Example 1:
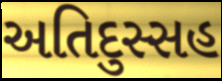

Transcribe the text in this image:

અતિદુસ્સહ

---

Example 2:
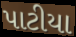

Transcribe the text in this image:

પાટીયા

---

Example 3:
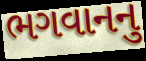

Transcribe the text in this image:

ભગવાનનુ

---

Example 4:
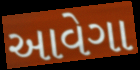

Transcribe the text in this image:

આવેગા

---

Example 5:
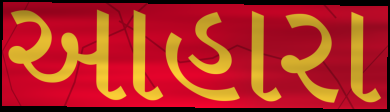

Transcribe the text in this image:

આહારા